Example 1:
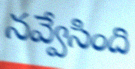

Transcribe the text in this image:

నవ్వేసింది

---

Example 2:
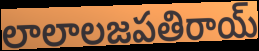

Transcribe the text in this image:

లాలాలజపతిరాయ్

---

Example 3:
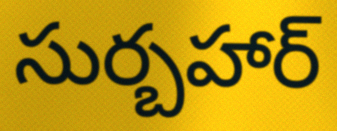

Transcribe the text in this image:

సుర్బహార్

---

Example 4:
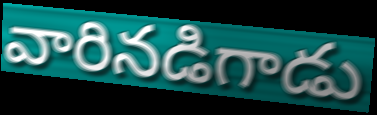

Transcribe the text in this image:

వారినడిగాడు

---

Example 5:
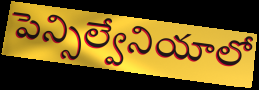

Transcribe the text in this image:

పెన్సిల్వేనియాలో